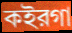
কইরগা